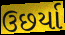
ઉછર્યા